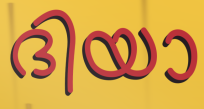
ദിയാ